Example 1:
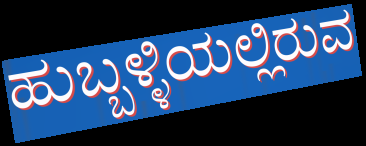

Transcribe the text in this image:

ಹುಬ್ಬಳ್ಳಿಯಲ್ಲಿರುವ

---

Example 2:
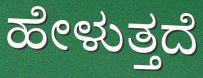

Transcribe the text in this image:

ಹೇಳುತ್ತದೆ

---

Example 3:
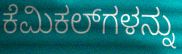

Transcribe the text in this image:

ಕೆಮಿಕಲ್‌ಗಳನ್ನು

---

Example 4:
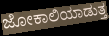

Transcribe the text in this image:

ಜೋಕಾಲಿಯಾಡುತ್ತ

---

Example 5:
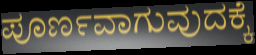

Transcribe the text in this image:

ಪೂರ್ಣವಾಗುವುದಕ್ಕೆ